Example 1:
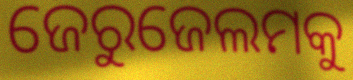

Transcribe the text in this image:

ଜେରୁଜେଲମକୁ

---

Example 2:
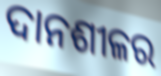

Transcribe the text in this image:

ଦାନଶୀଳର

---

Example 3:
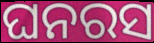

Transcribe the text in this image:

ଘନରସ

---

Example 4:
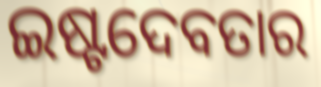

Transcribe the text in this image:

ଇଷ୍ଟଦେବତାର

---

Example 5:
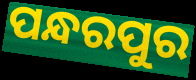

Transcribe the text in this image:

ପନ୍ଧରପୁର